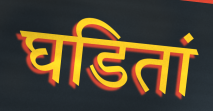
घडितां